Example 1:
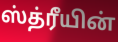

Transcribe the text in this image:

ஸ்த்ரீயின்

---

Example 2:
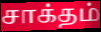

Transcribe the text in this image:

சாக்தம்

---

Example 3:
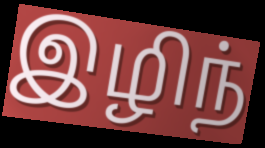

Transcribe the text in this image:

இழிந்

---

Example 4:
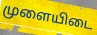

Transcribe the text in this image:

முளையிடை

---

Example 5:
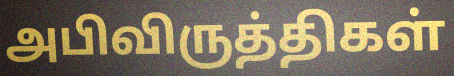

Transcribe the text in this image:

அபிவிருத்திகள்